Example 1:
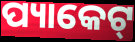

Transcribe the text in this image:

ପ୍ୟାକେଟ୍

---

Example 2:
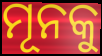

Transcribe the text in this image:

ମୂନକୁ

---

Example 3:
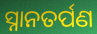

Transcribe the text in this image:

ସ୍ନାନତର୍ପଣ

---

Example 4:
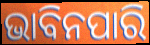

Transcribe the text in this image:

ଭାବିନପାରି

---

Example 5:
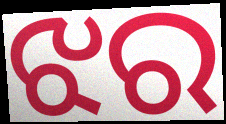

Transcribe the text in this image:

ଝର